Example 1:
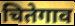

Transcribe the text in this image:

चितेगाव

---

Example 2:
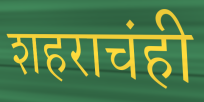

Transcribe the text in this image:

शहराचंही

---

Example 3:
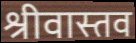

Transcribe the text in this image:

श्रीवास्तव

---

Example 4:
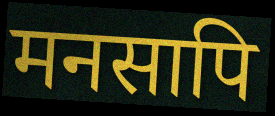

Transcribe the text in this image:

मनसापि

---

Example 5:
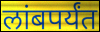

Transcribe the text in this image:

लांबपर्यंत